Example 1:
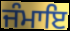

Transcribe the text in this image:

ਜੰਮਾਇ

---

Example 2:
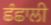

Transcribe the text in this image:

ਛੰਛਾਲੀ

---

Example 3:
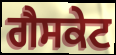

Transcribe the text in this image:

ਗੈਸਕੇਟ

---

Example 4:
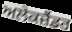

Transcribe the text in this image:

ਅਲੇਕਜ਼ੈਂਡਰ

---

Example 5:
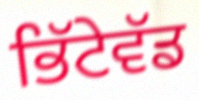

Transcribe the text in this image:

ਭਿੱਟੇਵੱਡ